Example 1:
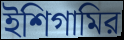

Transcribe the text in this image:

ইশিগামির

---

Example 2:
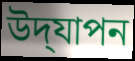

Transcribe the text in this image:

উদ্‌যাপন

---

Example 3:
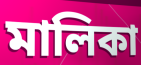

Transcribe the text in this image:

মালিকা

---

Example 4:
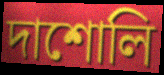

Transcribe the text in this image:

দাশোলি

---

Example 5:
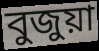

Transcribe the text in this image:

বুজুয়া